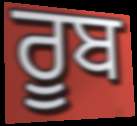
ਰੂਬ